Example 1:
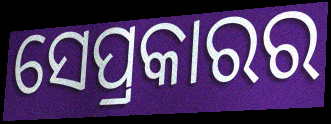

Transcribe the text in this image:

ସେପ୍ରକାରର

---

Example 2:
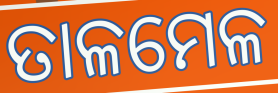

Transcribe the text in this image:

ତାଳମେଳ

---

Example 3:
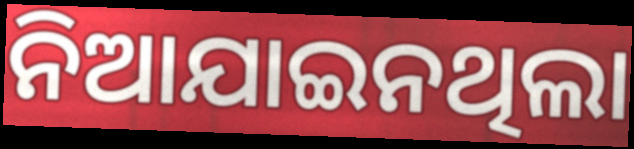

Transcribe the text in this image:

ନିଆଯାଇନଥିଲା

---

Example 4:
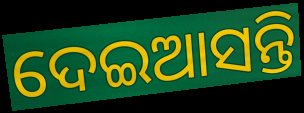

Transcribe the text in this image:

ଦେଇଆସନ୍ତି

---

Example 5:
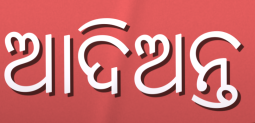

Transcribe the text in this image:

ଆଦିଅନ୍ତ